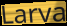
Larva